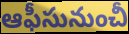
ఆఫీసునుంచీ